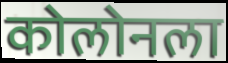
कोलोनला